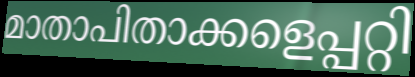
മാതാപിതാക്കളെപ്പറ്റി